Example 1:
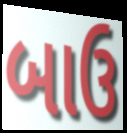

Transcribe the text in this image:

બાઉ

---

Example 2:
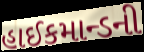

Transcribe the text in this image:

હાઈકમાન્ડની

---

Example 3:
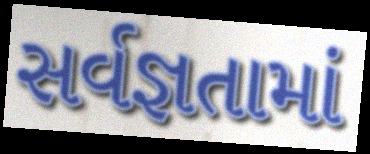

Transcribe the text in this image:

સર્વજ્ઞતામાં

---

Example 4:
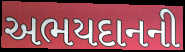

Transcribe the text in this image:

અભયદાનની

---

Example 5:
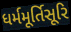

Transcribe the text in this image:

ધર્મમૂર્તિસૂરિ